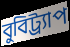
বুবিট্র্যাপ